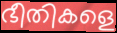
ഭീതികളെ